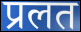
प्रलत